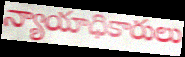
న్యాయాధికారులు